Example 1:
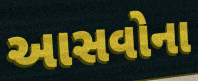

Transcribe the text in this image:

આસવોના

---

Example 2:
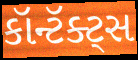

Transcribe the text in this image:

કૉન્ટૅક્ટ્સ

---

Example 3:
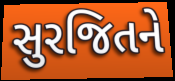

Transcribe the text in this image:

સુરજિતને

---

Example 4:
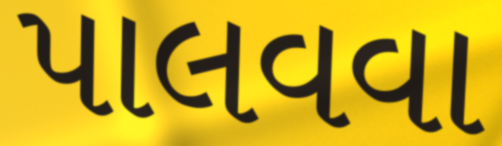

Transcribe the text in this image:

પાલવવા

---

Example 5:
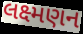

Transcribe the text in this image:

લક્ષ્મણન